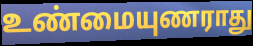
உண்மையுணராது